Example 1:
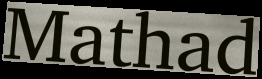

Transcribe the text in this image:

Mathad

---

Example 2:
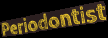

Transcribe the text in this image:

Periodontist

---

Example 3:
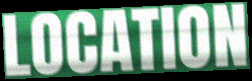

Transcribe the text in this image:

LOCATION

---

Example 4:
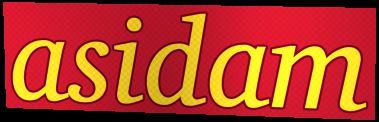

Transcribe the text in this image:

asidam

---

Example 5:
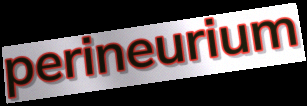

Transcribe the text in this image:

perineurium